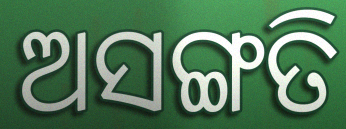
ଅସଙ୍ଗତି